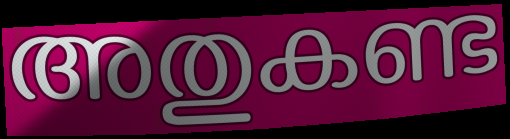
അതുകണ്ട